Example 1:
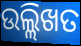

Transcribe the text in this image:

ଉଲ୍ଲିଖତ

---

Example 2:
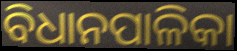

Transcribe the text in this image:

ବିଧାନପାଳିକା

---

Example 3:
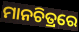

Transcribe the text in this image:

ମାନଚିତ୍ରରେ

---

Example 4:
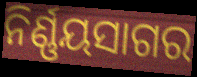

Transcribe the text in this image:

ନିର୍ଣ୍ଣୟସାଗର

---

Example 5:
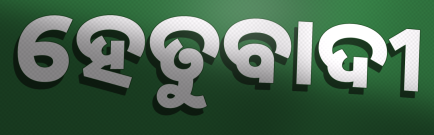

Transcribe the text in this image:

ହେତୁବାଦୀ